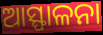
ଆସ୍ଫାଳନା